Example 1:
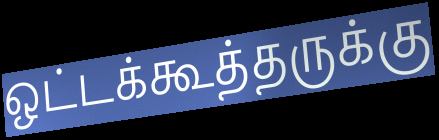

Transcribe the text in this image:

ஒட்டக்கூத்தருக்கு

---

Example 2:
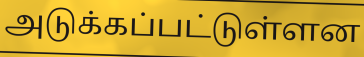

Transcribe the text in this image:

அடுக்கப்பட்டுள்ளன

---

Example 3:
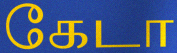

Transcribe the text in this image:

கேடா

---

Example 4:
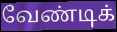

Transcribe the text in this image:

வேண்டிக்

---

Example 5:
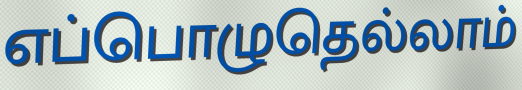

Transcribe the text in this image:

எப்பொழுதெல்லாம்